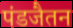
पंडजैतन